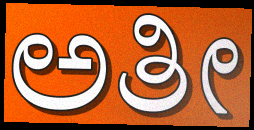
ಅತೀ